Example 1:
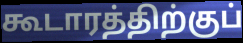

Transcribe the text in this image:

கூடாரத்திற்குப்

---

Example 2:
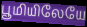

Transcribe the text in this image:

பூமியிலேயே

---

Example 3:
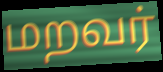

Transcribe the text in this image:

மறவர்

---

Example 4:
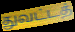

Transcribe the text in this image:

துவட்டத்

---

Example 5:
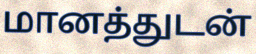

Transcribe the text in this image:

மானத்துடன்